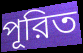
পূরিত